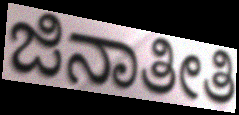
ಜಿನಾತೀತಿ